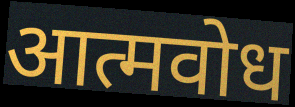
आत्मवोध